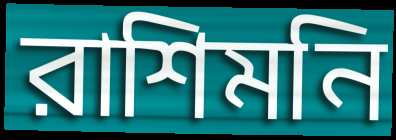
রাশিমনি